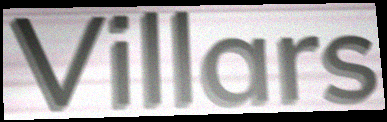
Villars